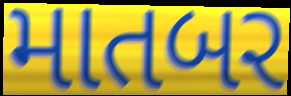
માતબર